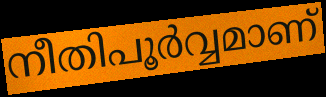
നീതിപൂർവ്വമാണ്